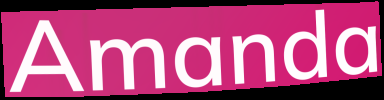
Amanda